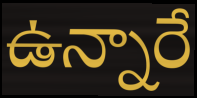
ఉన్నారే